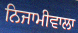
ਨਿਜਾਮੀਵਾਲਾ